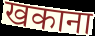
खकाना